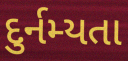
દુર્નમ્યતા